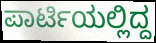
ಪಾರ್ಟಿಯಲ್ಲಿದ್ದ